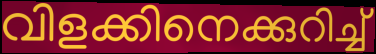
വിളക്കിനെക്കുറിച്ച്